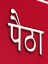
पैठा